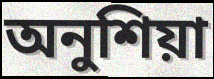
অনুশিয়া